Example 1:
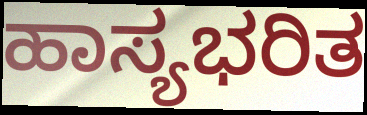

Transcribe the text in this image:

ಹಾಸ್ಯಭರಿತ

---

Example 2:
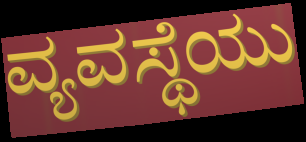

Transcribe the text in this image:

ವ್ಯವಸ್ಥೆಯು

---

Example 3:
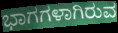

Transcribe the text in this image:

ಭಾಗಗಳಾಗಿರುವ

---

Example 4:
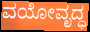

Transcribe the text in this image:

ವಯೋವೃದ್ಧ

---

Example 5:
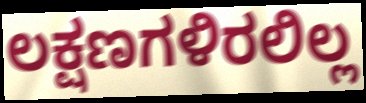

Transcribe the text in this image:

ಲಕ್ಷಣಗಳಿರಲಿಲ್ಲ